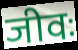
जीवः